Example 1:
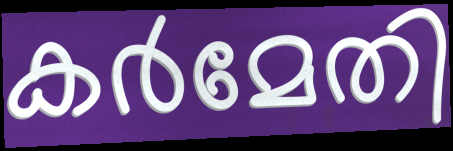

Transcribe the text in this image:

കർമേതി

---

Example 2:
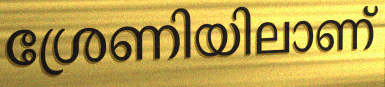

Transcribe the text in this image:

ശ്രേണിയിലാണ്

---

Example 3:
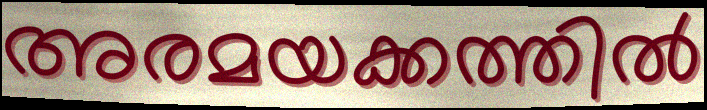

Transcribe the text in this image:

അരമയക്കത്തിൽ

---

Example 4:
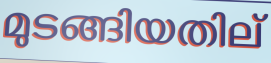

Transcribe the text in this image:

മുടങ്ങിയതില്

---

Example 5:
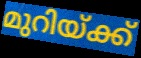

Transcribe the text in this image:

മുറിയ്ക്ക്